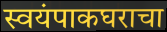
स्वयंपाकघराचा